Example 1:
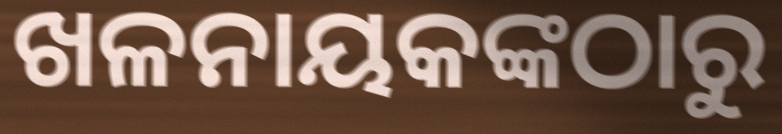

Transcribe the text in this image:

ଖଳନାୟକଙ୍କଠାରୁ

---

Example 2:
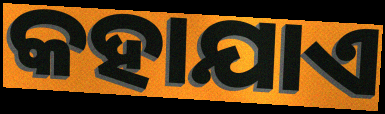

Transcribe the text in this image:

କହାଯାଏ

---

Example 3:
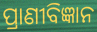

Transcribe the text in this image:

ପ୍ରାଣୀବିଜ୍ଞାନ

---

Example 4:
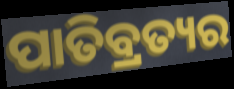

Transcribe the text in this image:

ପାତିବ୍ରତ୍ୟର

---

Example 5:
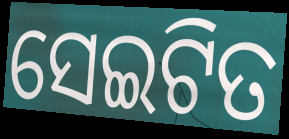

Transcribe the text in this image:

ସେଇଟିତ